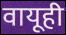
वायूही